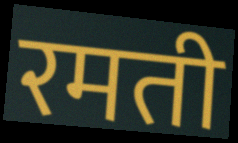
रमती